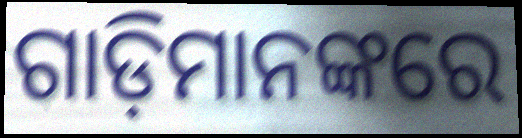
ଗାଡ଼ିମାନଙ୍କରେ